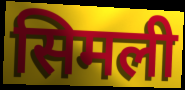
सिमली